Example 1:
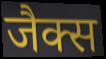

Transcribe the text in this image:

जैक्स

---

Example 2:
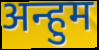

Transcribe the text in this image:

अन्हुम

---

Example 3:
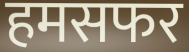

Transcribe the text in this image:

हमसफर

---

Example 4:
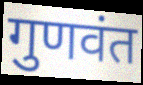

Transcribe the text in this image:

गुणवंत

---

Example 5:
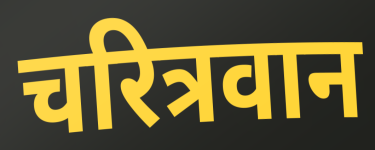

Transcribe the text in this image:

चरित्रवान